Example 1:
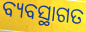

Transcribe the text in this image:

ବ୍ଯବସ୍ଥାଗତ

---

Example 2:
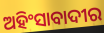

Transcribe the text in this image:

ଅହିଂସାବାଦୀର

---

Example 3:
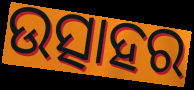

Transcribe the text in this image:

ଉତ୍ସାହର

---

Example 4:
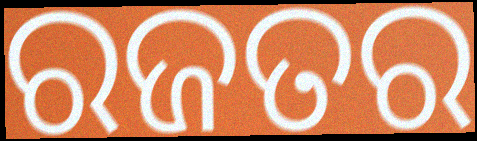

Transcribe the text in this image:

ରଜତର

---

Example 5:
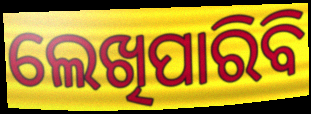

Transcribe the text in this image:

ଲେଖିପାରିବି